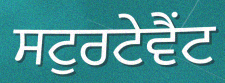
ਸਟੁਰਟੇਵੈਂਟ